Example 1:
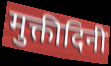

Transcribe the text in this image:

मुक्तीदिनी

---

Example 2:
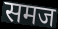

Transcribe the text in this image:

समज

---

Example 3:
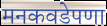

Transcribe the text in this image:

मनकवडेपणा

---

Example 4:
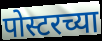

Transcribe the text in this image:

पोस्टरच्या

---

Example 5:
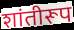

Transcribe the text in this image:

शांतीरूप